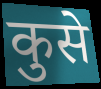
कुसे